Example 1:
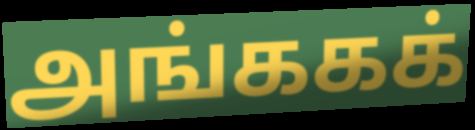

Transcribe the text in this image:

அங்ககக்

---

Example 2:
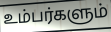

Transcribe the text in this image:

உம்பர்களும்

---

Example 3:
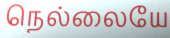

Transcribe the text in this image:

நெல்லையே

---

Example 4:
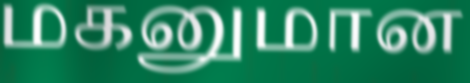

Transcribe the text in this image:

மகனுமான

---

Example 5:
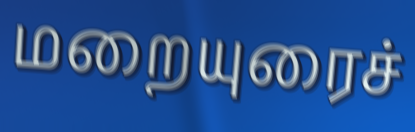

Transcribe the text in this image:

மறையுரைச்